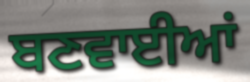
ਬਣਵਾਈਆਂ